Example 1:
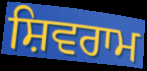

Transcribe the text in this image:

ਸ਼ਿਵਰਾਮ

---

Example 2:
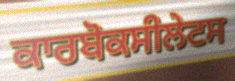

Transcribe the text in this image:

ਕਾਰਬੋਕਸੀਲੇਟਸ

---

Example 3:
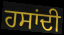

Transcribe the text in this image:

ਹਸਾਂਦੀ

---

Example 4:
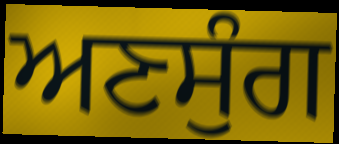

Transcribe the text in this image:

ਅਣਸੁੰਗ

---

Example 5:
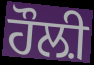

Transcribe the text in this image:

ਹੌਲ਼ੀ